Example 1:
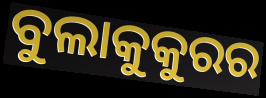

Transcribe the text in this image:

ବୁଲାକୁକୁରର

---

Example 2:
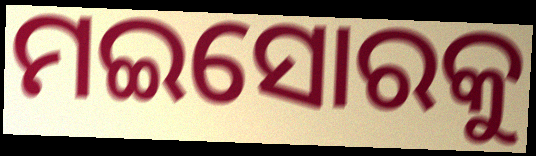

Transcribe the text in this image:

ମଇସୋରକୁ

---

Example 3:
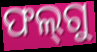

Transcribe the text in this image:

ଫଲ୍‌ଗୁ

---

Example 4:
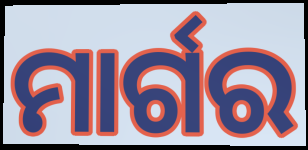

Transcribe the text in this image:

ମାର୍ଗର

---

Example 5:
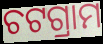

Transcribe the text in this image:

ଚଟଗ୍ରାମ